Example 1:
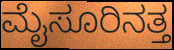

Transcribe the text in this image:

ಮೈಸೂರಿನತ್ತ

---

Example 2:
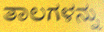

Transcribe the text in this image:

ತಾಲಗಳನ್ನು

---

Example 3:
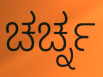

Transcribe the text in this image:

ಚರ್ಚ್ನ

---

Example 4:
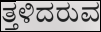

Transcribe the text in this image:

ತ್ತಳಿದರುವ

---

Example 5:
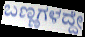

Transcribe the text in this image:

ಬಣ್ಣಗಳದ್ದೇ